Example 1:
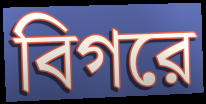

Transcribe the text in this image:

বিগরে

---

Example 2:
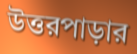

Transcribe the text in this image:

উত্তরপাড়ার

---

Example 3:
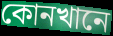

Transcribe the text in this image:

কোনখানে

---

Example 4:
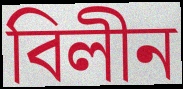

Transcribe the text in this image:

বিলীন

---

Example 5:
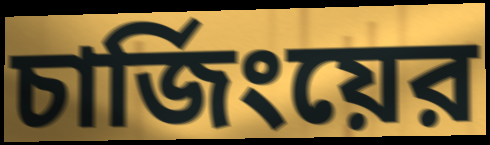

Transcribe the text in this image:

চার্জিংয়ের